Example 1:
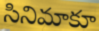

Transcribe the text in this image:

సినిమాకూ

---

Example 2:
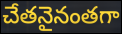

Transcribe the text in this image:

చేతనైనంతగా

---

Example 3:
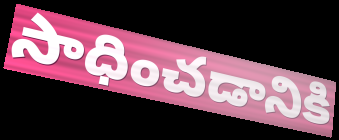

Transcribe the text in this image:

సాధించడానికి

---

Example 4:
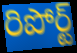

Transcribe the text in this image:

రిపోర్ట్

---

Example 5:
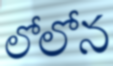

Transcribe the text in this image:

లోలోన